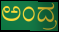
ಅಂದ್ರ